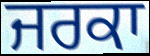
ਜਰਕਾ